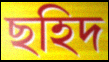
ছহিদ